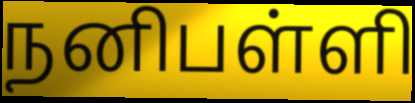
நனிபள்ளி